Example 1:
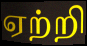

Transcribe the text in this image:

ஏற்றி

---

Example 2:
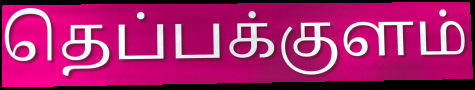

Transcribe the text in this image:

தெப்பக்குளம்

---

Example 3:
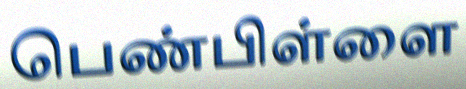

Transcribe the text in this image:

பெண்பிள்ளை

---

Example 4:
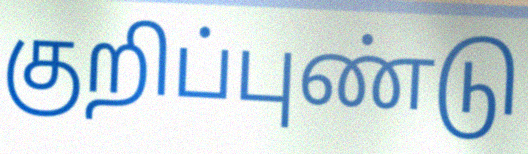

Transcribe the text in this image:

குறிப்புண்டு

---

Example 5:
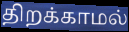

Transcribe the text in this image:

திறக்காமல்